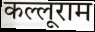
कल्लूराम